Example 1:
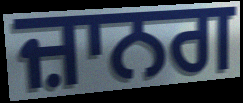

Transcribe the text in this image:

ਜ਼ਾਨਗ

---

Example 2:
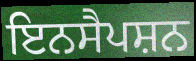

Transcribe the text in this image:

ਇਨਸੈਪਸ਼ਨ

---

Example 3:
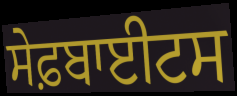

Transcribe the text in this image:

ਸੇਫ਼ਬਾਈਟਸ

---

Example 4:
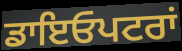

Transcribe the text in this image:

ਡਾਇਓਪਟਰਾਂ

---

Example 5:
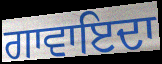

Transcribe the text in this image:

ਗਾਵਾਇਦਾ